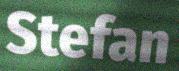
Stefan